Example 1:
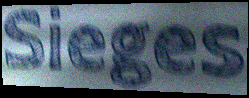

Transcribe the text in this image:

Sieges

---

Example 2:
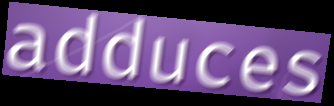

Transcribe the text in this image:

adduces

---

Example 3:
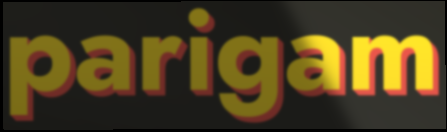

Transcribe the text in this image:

parigam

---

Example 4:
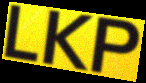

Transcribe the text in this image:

LKP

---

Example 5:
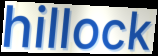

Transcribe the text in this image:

hillock